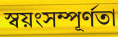
স্বয়ংসম্পূর্ণতা